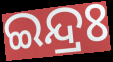
ଇନ୍ଦ୍ରଃ